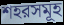
শহরসমূহ